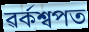
ৱৰ্কশ্বপত